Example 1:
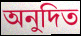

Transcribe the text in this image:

অনুদিত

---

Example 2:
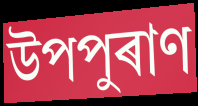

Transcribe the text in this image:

উপপুৰাণ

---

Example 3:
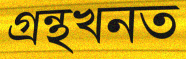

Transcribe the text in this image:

গ্ৰন্থখনত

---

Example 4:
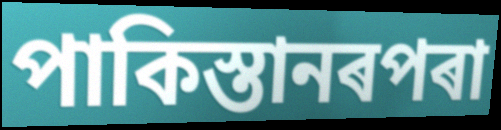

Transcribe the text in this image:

পাকিস্তানৰপৰা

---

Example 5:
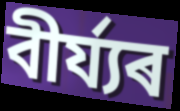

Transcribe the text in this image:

বীৰ্য্যৰ